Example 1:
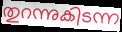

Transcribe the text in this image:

തുറന്നുകിടന്ന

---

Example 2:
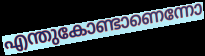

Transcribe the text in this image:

എന്തുകോണ്ടാണെന്നോ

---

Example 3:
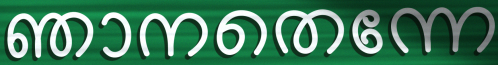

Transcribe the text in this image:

ഞാനതെന്നേ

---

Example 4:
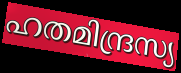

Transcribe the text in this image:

ഹതമിന്ദ്രസ്യ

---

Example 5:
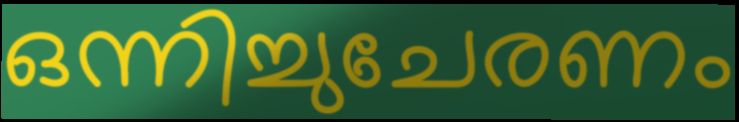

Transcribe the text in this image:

ഒന്നിച്ചുചേരണം